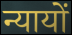
न्यायों